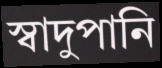
স্বাদুপানি